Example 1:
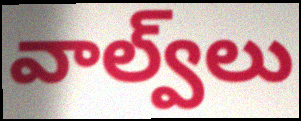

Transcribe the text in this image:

వాల్వ్‌లు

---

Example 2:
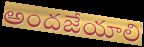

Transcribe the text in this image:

అందజేయాలి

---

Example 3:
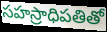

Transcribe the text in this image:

సహస్రాధిపతితో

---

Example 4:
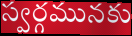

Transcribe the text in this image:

స్వర్గమునకు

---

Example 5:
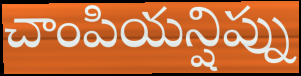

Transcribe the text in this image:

చాంపియన్షిప్ను